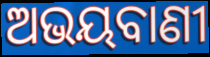
ଅଭୟବାଣୀ